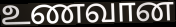
உணவான